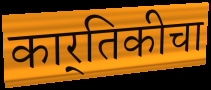
कार्तिकीचा